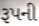
રૂપની